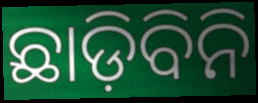
ଛାଡ଼ିବିନି